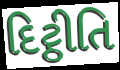
દિટ્ઠીતિ